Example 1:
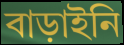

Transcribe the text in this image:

বাড়াইনি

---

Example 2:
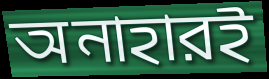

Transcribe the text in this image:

অনাহারই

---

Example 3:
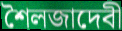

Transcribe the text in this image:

শৈলজাদেবী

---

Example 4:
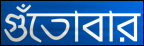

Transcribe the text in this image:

গুঁতোবার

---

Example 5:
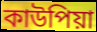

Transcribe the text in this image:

কাউপিয়া